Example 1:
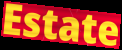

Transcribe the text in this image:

Estate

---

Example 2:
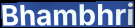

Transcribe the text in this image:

Bhambhri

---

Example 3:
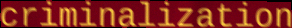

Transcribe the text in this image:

criminalization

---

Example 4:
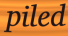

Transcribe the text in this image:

piled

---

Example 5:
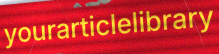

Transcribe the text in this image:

yourarticlelibrary